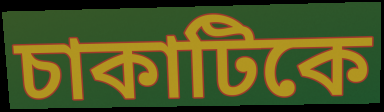
চাকাটিকে